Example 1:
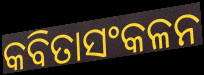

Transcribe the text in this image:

କବିତାସଂକଳନ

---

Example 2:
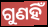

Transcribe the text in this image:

ଗୁଣହିଁ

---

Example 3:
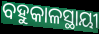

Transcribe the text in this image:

ବହୁକାଳସ୍ଥାୟୀ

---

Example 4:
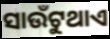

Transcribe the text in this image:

ସାଉଁଟୁଥାଏ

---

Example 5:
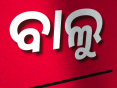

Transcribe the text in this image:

ବାଲୁ